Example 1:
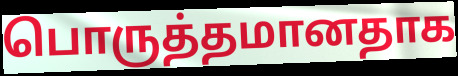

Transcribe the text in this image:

பொருத்தமானதாக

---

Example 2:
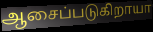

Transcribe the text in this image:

ஆசைப்படுகிறாயா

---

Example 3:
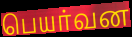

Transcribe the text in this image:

பெயர்வன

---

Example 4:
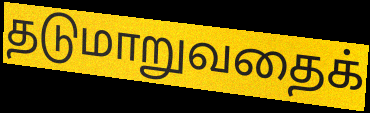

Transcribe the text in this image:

தடுமாறுவதைக்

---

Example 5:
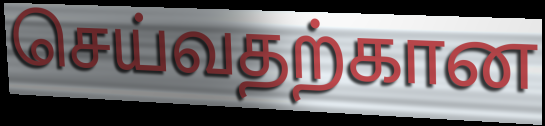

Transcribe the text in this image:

செய்வதற்கான